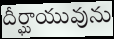
దీర్ఘాయువును